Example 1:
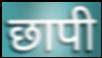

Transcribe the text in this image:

छापी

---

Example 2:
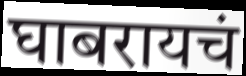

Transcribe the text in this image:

घाबरायचं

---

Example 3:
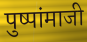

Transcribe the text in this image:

पुष्पांमाजी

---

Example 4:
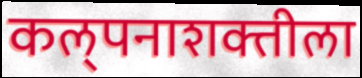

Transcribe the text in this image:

कल्पनाशक्तीला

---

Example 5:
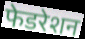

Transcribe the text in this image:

फेडरेशन